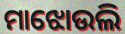
ମାଝୋଉଲି